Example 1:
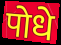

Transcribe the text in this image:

पोधे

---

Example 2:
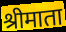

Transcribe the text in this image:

श्रीमाता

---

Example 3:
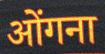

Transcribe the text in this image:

ओंगना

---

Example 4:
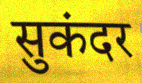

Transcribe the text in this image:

सुकंदर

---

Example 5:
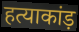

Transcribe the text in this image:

हत्याकांड़